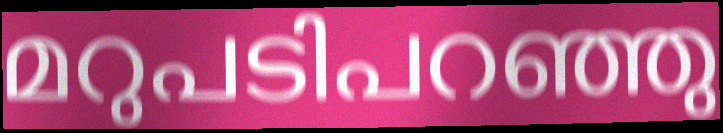
മറുപടിപറഞ്ഞു